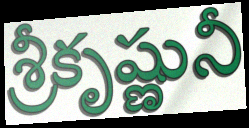
శ్రీకృష్ణునీ